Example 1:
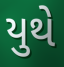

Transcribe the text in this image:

યુથે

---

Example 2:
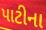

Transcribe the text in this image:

પાટીના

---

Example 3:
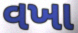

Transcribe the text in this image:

વખા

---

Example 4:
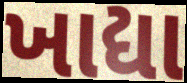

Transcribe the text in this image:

ખાદ્યા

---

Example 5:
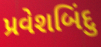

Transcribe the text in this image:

પ્રવેશબિંદુ